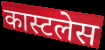
कास्टलेस